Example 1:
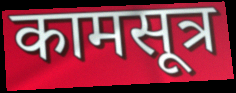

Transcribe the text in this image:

कामसूत्र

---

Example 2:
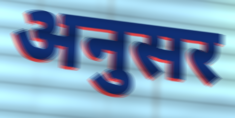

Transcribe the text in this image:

अनुसर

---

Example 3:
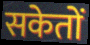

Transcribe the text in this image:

सकेतों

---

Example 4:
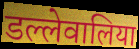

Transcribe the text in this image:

डल्लेवालिया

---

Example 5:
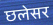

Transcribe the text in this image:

छलेसर